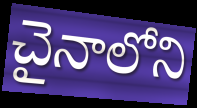
చైనాలోని